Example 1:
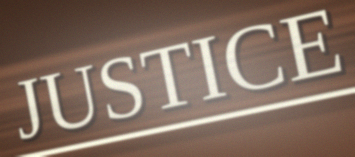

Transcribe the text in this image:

JUSTICE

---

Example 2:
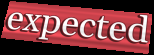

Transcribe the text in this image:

expected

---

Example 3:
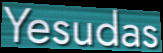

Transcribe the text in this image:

Yesudas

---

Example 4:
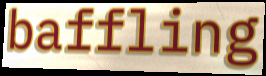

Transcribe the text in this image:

baffling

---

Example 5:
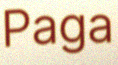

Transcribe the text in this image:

Paga